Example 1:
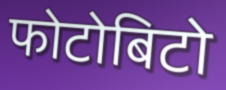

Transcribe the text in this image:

फोटोबिटो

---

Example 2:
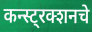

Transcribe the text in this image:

कन्स्ट्रक्शनचे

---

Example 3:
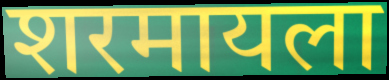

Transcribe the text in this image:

शरमायला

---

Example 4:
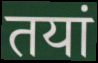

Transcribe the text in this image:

तयां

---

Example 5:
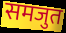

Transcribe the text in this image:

समजुत